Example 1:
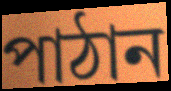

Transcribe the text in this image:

পাঠান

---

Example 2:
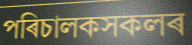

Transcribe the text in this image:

পৰিচালকসকলৰ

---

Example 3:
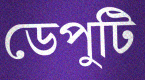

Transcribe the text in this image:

ডেপুটি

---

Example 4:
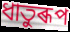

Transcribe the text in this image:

ধাতুৰূপ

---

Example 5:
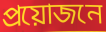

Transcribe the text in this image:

প্ৰয়োজনে